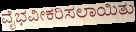
ವೈಭವೀಕರಿಸಲಾಯಿತು